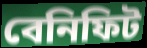
বেনিফিট